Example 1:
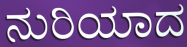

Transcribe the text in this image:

ನುರಿಯಾದ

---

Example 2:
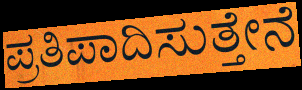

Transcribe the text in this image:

ಪ್ರತಿಪಾದಿಸುತ್ತೇನೆ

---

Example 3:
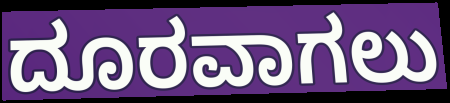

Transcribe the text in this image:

ದೂರವಾಗಲು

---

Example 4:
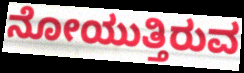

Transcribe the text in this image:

ನೋಯುತ್ತಿರುವ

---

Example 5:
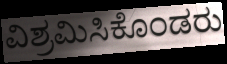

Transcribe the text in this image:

ವಿಶ್ರಮಿಸಿಕೊಂಡರು